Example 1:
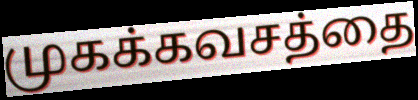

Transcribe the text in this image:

முகக்கவசத்தை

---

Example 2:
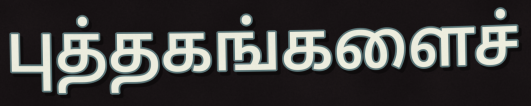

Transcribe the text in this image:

புத்தகங்களைச்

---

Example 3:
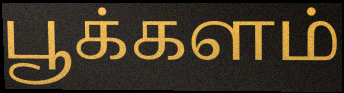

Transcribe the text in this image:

பூக்களம்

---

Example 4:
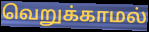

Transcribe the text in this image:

வெறுக்காமல்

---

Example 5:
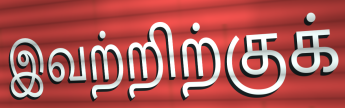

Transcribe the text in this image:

இவற்றிற்குக்